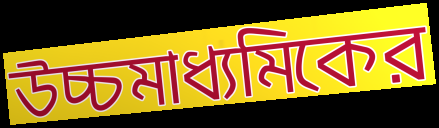
উচ্চমাধ্যমিকের